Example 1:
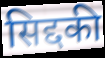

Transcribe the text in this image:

सिद्दकी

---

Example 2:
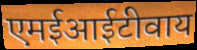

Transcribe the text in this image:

एमईआईटीवाय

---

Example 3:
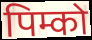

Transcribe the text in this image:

पिम्को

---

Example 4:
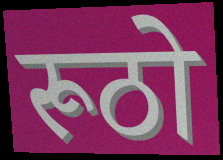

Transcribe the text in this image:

रूठो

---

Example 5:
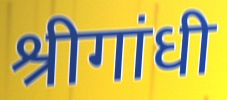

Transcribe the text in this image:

श्रीगांधी